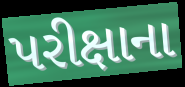
પરીક્ષાના